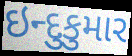
ઇન્દુકુમાર